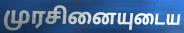
முரசினையுடைய